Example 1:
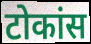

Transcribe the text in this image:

टोकांस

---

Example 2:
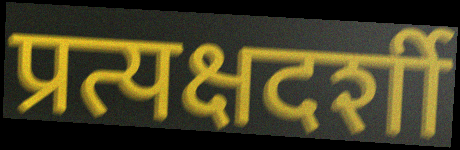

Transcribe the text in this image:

प्रत्यक्षदर्शी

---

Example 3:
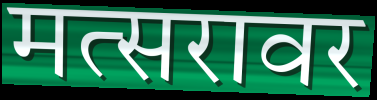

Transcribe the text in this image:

मत्सरावर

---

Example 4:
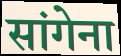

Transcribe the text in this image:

सांगेना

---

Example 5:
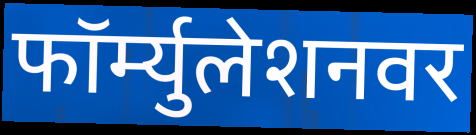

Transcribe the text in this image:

फॉर्म्युलेशनवर